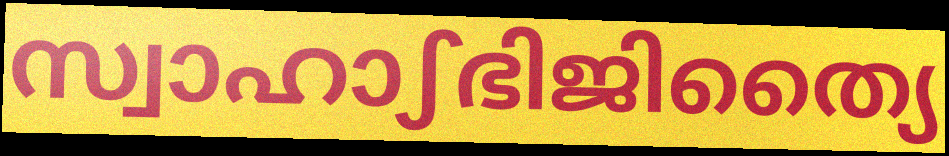
സ്വാഹാഽഭിജിത്യൈ